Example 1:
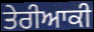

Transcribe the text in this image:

ਤੇਰੀਆਕੀ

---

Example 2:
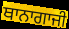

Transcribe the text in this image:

ਥਾਨਾਗਾਜੀ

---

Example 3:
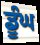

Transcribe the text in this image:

ਡੂੰਘ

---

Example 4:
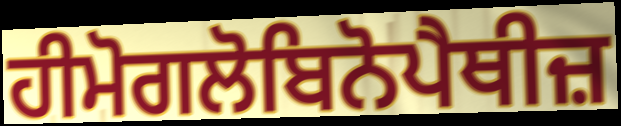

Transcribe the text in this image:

ਹੀਮੋਗਲੋਬਿਨੋਪੈਥੀਜ਼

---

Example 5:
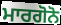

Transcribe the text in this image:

ਮਾਰਗੋਨੋ